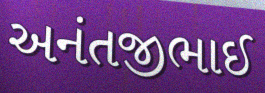
અનંતજીભાઈ